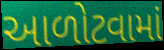
આળોટવામાં